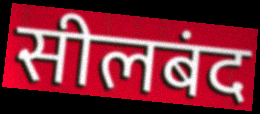
सीलबंद